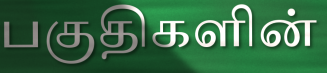
பகுதிகளின்